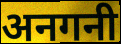
अनगनी